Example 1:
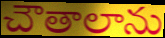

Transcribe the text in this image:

చౌతాలాను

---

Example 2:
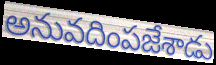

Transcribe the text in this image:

అనువదింపజేశాడు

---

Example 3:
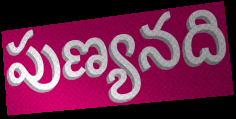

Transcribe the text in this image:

పుణ్యనది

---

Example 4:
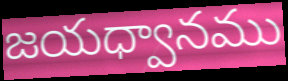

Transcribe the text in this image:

జయధ్వానము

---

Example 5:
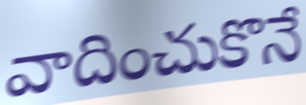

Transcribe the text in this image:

వాదించుకొనే